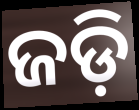
ଜଡ଼ି